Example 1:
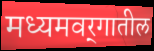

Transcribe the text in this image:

मध्यमवर्गातील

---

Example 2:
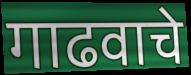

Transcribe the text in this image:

गाढवाचे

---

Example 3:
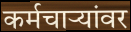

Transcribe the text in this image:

कर्मचार्‍यांवर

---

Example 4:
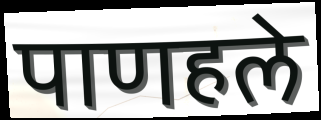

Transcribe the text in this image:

पाणहले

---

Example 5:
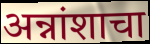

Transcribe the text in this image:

अन्नांशाचा